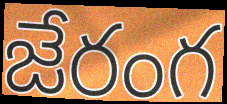
జేరంగ